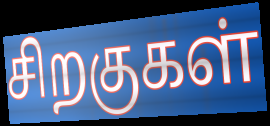
சிறகுகள்